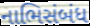
નાભિસંબંધ